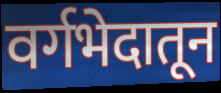
वर्गभेदातून